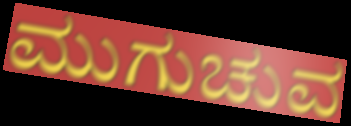
ಮುಗುಚುವ